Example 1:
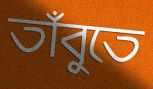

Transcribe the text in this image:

তাঁবুতে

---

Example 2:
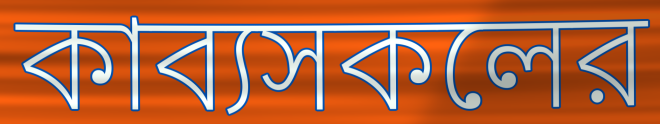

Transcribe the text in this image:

কাব্যসকলের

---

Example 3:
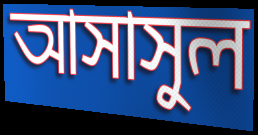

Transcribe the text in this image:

আসাসুল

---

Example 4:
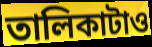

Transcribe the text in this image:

তালিকাটাও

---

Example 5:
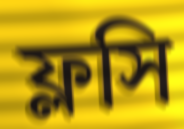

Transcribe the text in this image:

ফ্লসি